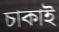
চাকাই